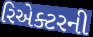
રિએક્ટરની